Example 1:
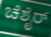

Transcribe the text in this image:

ಚೆಶೈರ್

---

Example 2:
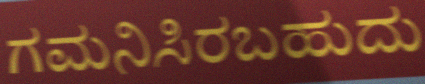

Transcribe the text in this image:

ಗಮನಿಸಿರಬಹುದು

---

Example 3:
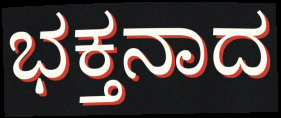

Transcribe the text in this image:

ಭಕ್ತನಾದ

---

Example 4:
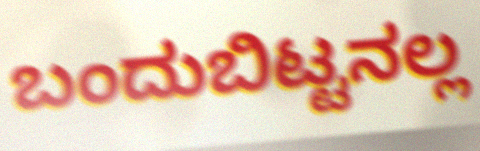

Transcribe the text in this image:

ಬಂದುಬಿಟ್ಟನಲ್ಲ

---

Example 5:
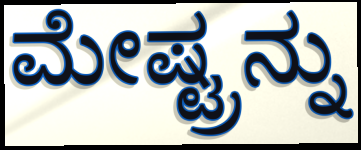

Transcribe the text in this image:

ಮೇಷ್ಟ್ರನ್ನು